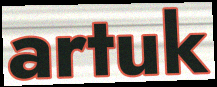
artuk